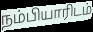
நம்பியாரிடம்